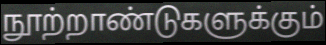
நூற்றாண்டுகளுக்கும்